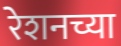
रेशनच्या